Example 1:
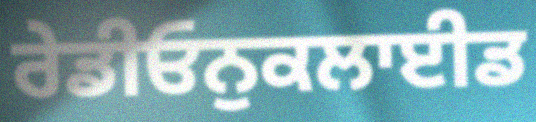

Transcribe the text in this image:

ਰੇਡੀਓਨੁਕਲਾਈਡ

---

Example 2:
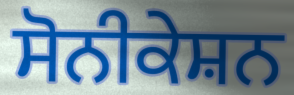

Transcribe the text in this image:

ਸੋਨੀਕੇਸ਼ਨ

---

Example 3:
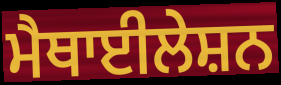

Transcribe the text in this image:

ਮੈਥਾਈਲੇਸ਼ਨ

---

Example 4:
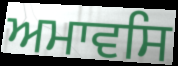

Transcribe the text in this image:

ਅਮਾਵਸਿ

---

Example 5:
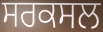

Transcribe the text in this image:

ਸਰਕਸਲ